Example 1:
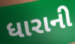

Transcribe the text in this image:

ધારાની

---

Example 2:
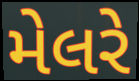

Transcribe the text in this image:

મેલરે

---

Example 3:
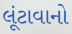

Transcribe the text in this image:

લૂંટાવાનો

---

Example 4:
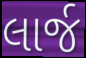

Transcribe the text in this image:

લાર્જ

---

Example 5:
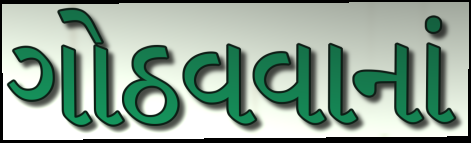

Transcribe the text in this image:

ગોઠવવાનાં